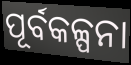
ପୂର୍ବକଳ୍ପନା